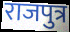
राजपुत्र